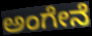
ಅಂಗೇನೆ